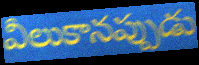
వీలుకానప్పుడు